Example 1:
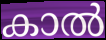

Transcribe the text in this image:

കാൽ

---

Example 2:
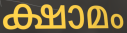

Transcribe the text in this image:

ക്ഷാമം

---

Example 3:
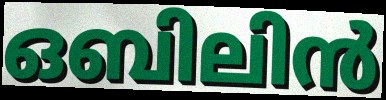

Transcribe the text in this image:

ഒബിലിൻ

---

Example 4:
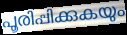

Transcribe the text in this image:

പൂരിപ്പിക്കുകയും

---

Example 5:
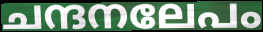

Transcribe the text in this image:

ചന്ദനലേപം